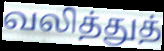
வலித்துத்